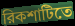
রিকশাটিতে